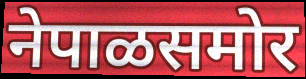
नेपाळसमोर